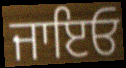
ਜਾਇਓ